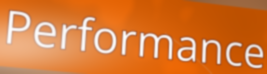
Performance